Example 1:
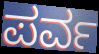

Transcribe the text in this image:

ಪರ್ವ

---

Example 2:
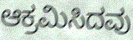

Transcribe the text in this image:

ಆಕ್ರಮಿಸಿದವು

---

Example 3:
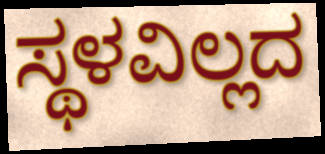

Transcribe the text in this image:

ಸ್ಥಳವಿಲ್ಲದ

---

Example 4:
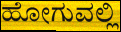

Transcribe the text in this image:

ಹೋಗುವಲ್ಲಿ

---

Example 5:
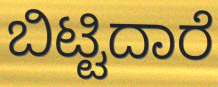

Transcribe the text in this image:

ಬಿಟ್ಟಿದಾರೆ